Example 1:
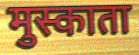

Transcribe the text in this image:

मुस्काता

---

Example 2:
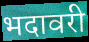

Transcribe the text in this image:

भदावरी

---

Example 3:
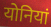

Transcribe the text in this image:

योनियां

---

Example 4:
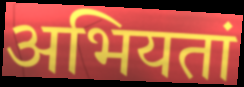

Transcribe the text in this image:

अभियतां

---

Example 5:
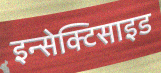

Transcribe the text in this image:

इन्सेक्टिसाइड